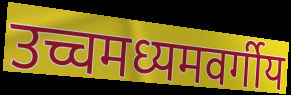
उच्चमध्यमवर्गीय